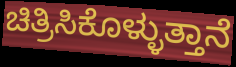
ಚಿತ್ರಿಸಿಕೊಳ್ಳುತ್ತಾನೆ